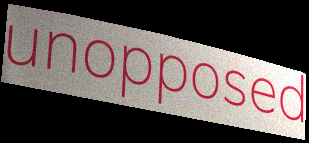
unopposed